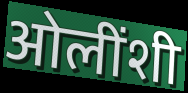
ओलींशी